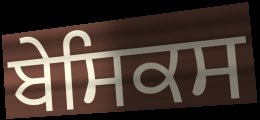
ਬੇਸਿਕਸ